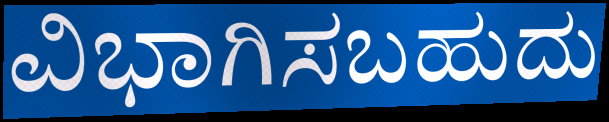
ವಿಭಾಗಿಸಬಹುದು